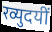
रव्युदयीं